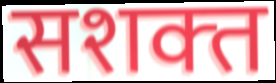
सशक्‍त